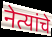
नेत्यांचे